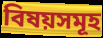
বিষয়সমূহ